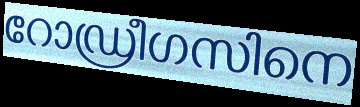
റോഡ്രീഗസിനെ